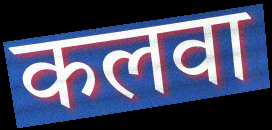
कलवा